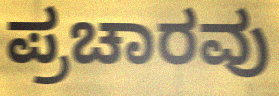
ಪ್ರಚಾರವು